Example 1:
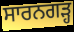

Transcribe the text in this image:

ਸਾਰਨਗੜ੍ਹ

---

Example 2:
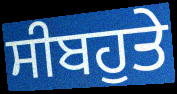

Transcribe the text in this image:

ਸੀਬਹੁਤੇ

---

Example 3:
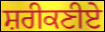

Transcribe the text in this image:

ਸ਼ਰੀਕਣੀਏ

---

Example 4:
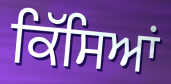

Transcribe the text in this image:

ਕਿੱਸਿਆਂ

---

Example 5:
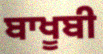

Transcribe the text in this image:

ਬਾਖੂਬੀ